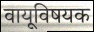
वायूविषयक